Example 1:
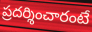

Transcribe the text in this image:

ప్రదర్శించారంటే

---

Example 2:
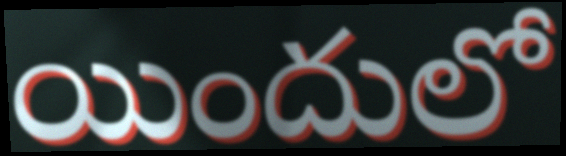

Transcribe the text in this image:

యిందులో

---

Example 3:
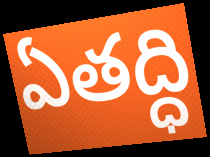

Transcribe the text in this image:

ఏతద్ధి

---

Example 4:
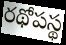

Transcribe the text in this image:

రథోపస్థ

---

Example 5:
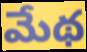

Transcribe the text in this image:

మేథ